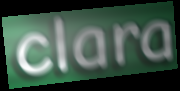
clara